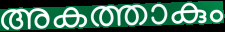
അകത്താകും